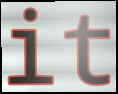
it